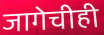
जागेचीही